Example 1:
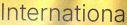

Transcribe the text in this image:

Internationa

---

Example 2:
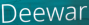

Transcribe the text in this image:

Deewar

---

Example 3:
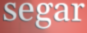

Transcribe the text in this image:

segar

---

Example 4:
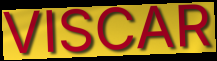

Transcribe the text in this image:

VISCAR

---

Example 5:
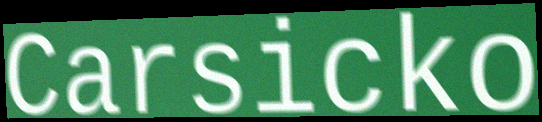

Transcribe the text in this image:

Carsicko